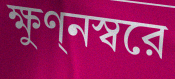
ক্ষুণ্নস্বরে